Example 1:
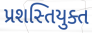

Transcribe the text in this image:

પ્રશસ્તિયુક્ત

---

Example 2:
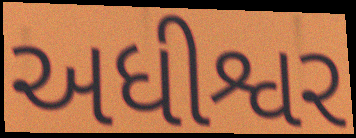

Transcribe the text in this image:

અધીશ્વર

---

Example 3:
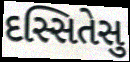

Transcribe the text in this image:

દસ્સિતેસુ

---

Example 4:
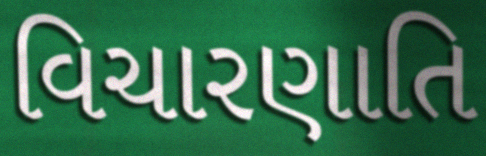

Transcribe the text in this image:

વિચારણાતિ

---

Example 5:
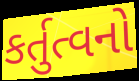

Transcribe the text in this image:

કર્તુત્વનો